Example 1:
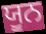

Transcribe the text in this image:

ਯੂਨ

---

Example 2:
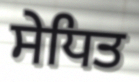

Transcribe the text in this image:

ਸੇਧਿਤ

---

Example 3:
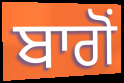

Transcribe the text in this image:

ਬਾਗੋਂ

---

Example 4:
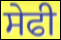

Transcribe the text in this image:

ਸੇਫੀ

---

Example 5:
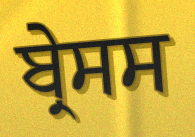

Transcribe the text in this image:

ਬ੍ਰੇਸਸ